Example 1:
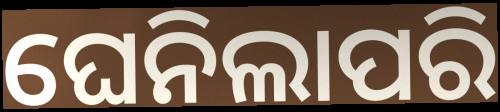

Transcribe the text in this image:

ଘେନିଲାପରି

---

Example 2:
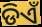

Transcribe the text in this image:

ଡିଏଁ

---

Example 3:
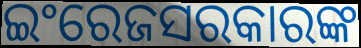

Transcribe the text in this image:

ଇଂରେଜସରକାରଙ୍କ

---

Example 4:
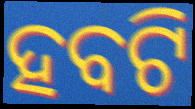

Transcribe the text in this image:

ହବଟି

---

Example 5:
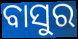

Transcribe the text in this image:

ବାସୁର